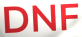
DNF